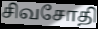
சிவசோதி